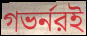
গভর্নরই